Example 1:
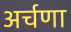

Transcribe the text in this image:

अर्चणा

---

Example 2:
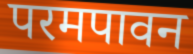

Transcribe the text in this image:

परमपावन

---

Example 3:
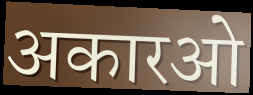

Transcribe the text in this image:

अकारओ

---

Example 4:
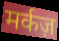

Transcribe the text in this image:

मर्कज़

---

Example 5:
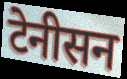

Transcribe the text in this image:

टेनीसन